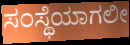
ಸಂಸ್ಥೆಯಾಗಲೀ